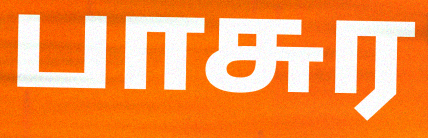
பாசுர